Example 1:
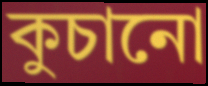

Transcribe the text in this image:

কুচানো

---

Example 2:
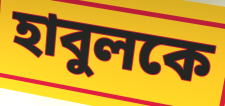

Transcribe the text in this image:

হাবুলকে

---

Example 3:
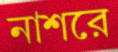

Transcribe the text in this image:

নাশরে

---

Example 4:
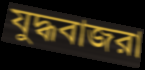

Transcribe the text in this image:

যুদ্ধবাজরা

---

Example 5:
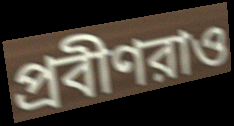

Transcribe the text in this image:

প্রবীণরাও